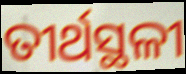
ତୀର୍ଥସ୍ଥଳୀ